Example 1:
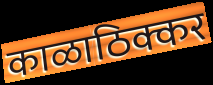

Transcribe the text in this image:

काळाठिक्कर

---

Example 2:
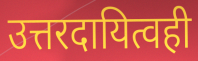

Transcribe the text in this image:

उत्तरदायित्वही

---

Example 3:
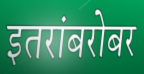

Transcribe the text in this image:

इतरांबरोबर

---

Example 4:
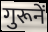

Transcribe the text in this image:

गुरूनें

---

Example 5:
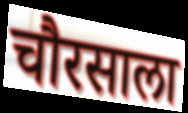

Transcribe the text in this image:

चौरसाला